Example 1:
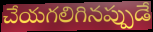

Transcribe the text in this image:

చేయగలిగినప్పుడే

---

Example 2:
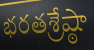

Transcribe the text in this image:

భరతశ్రేష్ఠా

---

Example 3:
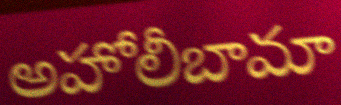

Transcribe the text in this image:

అహోలీబామా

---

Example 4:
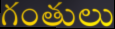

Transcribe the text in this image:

గంతులు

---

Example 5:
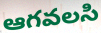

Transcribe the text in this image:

ఆగవలసి